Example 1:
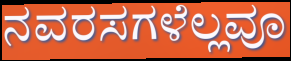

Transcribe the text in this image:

ನವರಸಗಳೆಲ್ಲವೂ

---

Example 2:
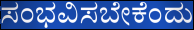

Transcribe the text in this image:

ಸಂಭವಿಸಬೇಕೆಂದು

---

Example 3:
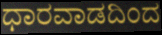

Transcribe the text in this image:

ಧಾರವಾಡದಿಂದ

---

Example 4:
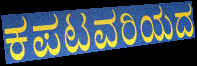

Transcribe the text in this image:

ಕಪಟವರಿಯದ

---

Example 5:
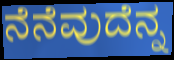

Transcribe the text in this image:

ನೆನೆವುದೆನ್ನ